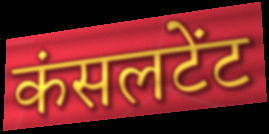
कंसलटेंट